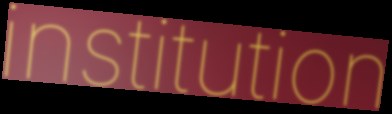
institution